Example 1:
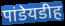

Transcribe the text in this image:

पांडेयडीह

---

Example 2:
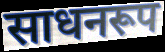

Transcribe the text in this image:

साधनरूप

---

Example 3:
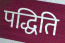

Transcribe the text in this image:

पद्धिति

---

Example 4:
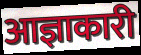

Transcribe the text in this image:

आज्ञाकारी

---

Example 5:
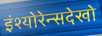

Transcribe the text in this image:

इंश्योरेन्सदेखो